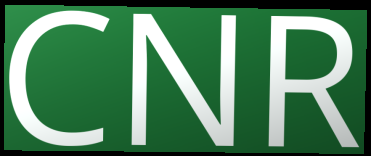
CNR